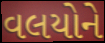
વલયોને